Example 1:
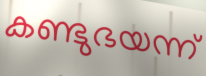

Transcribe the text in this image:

കണ്ടുഭയന്ന്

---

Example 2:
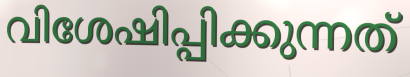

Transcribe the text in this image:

വിശേഷിപ്പിക്കുന്നത്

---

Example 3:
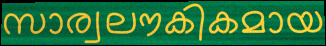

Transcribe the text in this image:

സാര്വലൗകികമായ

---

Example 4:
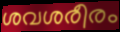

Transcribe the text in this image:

ശവശരീരം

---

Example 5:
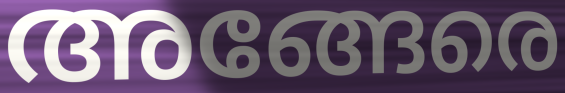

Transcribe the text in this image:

അങ്ങേരെ